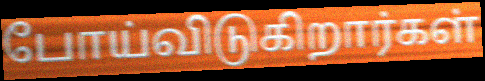
போய்விடுகிறார்கள்